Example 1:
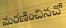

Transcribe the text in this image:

మరణించినచో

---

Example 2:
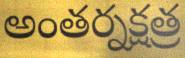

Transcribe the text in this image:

అంతర్నక్షత్ర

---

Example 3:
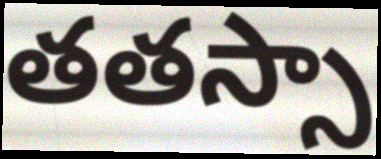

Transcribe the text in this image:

తతస్సా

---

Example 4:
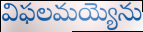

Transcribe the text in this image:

విఫలమయ్యెను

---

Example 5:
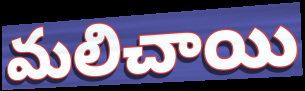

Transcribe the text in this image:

మలిచాయి